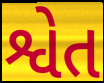
શ્વેત